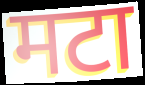
मटा